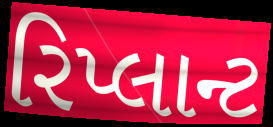
રિપ્લાન્ટ